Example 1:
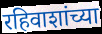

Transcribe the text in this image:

रहिवाशांच्या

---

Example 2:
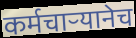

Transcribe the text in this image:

कर्मचाऱ्यानेच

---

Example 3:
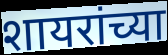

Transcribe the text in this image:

शायरांच्या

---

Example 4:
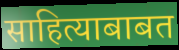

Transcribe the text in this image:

साहित्याबाबत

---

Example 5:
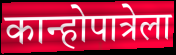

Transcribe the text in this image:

कान्होपात्रेला